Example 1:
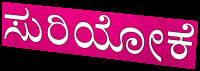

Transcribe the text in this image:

ಸುರಿಯೋಕೆ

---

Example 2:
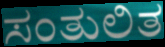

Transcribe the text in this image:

ಸಂತುಲಿತ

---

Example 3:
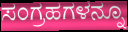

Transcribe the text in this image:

ಸಂಗ್ರಹಗಳನ್ನೂ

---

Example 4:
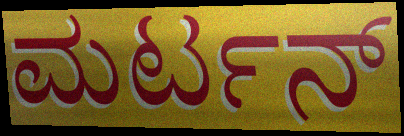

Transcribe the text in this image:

ಮರ್ಟನ್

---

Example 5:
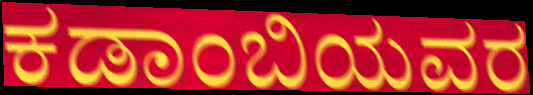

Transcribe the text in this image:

ಕಡಾಂಬಿಯವರ